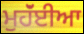
ਮੁਹੱਂਈਆ